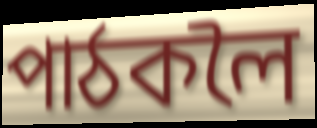
পাঠকলৈ